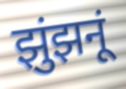
झुंझनूं